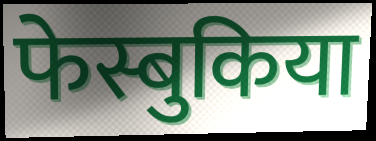
फेस्बुकिया